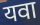
यवा